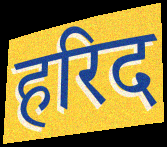
हरिद